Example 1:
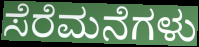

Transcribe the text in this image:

ಸೆರೆಮನೆಗಳು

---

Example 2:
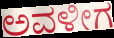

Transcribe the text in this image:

ಅವಳೀಗ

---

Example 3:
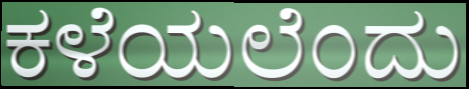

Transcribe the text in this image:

ಕಳೆಯಲೆಂದು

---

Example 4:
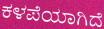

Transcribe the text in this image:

ಕಳಪೆಯಾಗಿದೆ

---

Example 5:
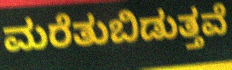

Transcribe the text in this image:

ಮರೆತುಬಿಡುತ್ತವೆ